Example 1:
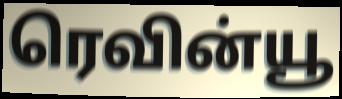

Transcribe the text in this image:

ரெவின்யூ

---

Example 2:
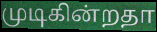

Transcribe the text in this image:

முடிகின்றதா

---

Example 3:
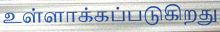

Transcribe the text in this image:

உள்ளாக்கப்படுகிறது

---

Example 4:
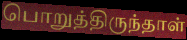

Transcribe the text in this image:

பொறுத்திருந்தாள்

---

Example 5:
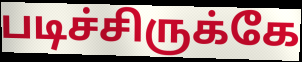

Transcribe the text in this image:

படிச்சிருக்கே